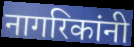
नागरिकांनी